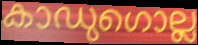
കാഡുഗൊല്ല